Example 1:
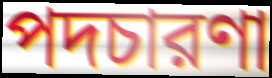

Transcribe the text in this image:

পদচারণা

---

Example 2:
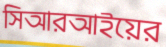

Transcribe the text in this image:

সিআরআইয়ের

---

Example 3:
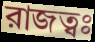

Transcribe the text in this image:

রাজত্বঃ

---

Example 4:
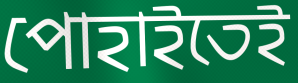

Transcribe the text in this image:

পোহাইতেই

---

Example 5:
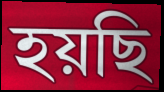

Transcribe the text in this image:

হয়ছি